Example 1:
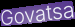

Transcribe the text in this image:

Govatsa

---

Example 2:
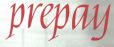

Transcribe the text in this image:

prepay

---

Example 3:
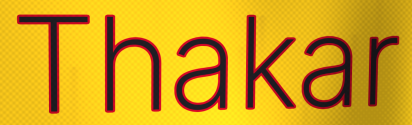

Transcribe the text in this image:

Thakar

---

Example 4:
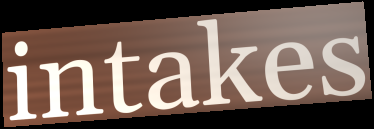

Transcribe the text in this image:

intakes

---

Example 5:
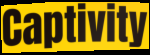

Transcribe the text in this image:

Captivity